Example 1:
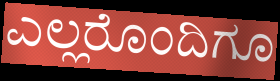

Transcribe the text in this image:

ಎಲ್ಲರೊಂದಿಗೂ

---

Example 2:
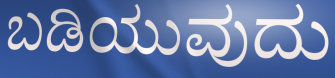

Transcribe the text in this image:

ಬಡಿಯುವುದು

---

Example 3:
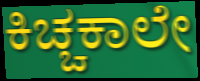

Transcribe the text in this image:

ಕಿಚ್ಚಕಾಲೇ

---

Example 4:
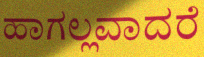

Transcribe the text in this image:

ಹಾಗಲ್ಲವಾದರೆ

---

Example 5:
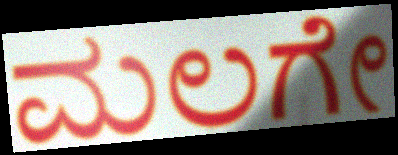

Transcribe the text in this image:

ಮಲಗೇ